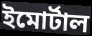
ইমোর্টাল